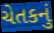
ચેતકનું